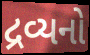
દ્રવ્યનો